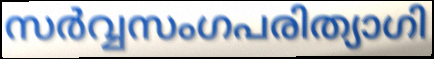
സർവ്വസംഗപരിത്യാഗി